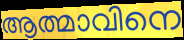
ആത്മാവിനെ